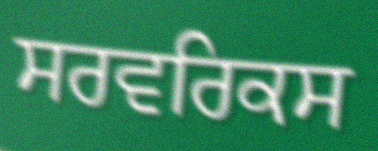
ਸਰਵਰਿਕਸ